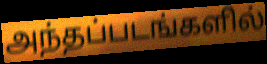
அந்தப்படங்களில்